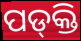
ପଡ୍‌କ୍ତି